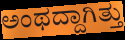
ಅಂಥದ್ದಾಗಿತ್ತು